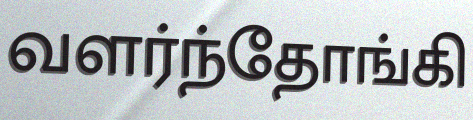
வளர்ந்தோங்கி